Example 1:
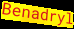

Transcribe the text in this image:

Benadryl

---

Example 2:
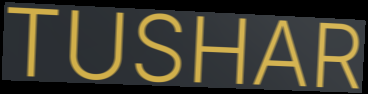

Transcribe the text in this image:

TUSHAR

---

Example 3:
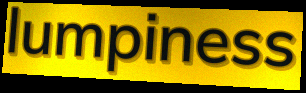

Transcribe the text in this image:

lumpiness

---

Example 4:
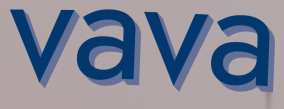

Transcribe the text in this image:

vava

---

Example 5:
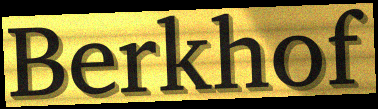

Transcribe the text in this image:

Berkhof